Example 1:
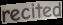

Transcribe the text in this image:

recited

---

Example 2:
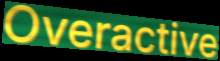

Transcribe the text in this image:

Overactive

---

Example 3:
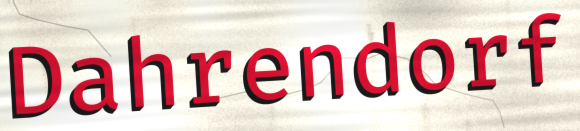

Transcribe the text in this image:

Dahrendorf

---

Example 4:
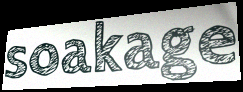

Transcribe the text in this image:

soakage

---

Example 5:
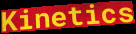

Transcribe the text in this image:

Kinetics